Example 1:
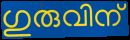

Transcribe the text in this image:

ഗുരുവിന്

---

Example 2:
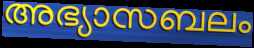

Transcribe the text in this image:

അഭ്യാസബലം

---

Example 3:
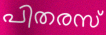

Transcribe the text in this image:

പിതരസ്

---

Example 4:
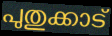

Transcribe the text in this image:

പുതുക്കാട്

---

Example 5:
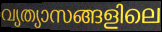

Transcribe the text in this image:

വ്യത്യാസങ്ങളിലെ